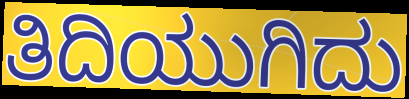
ತಿದಿಯುಗಿದು